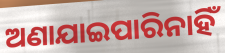
ଅଣାଯାଇପାରିନାହିଁ